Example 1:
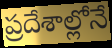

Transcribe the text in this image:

ప్రదేశాల్లోనే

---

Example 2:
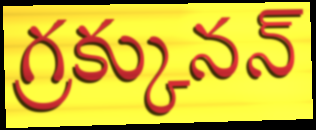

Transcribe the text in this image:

గ్రక్కునన్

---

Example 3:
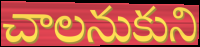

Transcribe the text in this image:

చాలనుకుని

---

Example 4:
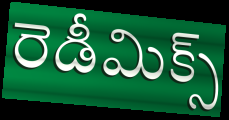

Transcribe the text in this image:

రెడీమిక్స్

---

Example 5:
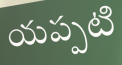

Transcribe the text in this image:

యప్పటి